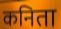
कनिता